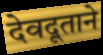
देवदूताने